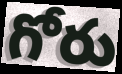
గోరు